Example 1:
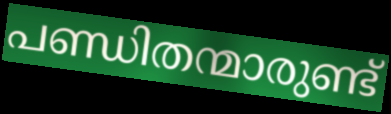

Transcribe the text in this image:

പണ്ഡിതന്മാരുണ്ട്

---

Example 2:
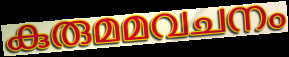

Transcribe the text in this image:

കുരുമമവചനം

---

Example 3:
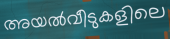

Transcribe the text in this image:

അയൽവീടുകളിലെ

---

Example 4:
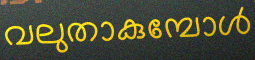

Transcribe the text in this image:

വലുതാകുമ്പോൾ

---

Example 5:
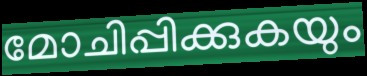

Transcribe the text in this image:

മോചിപ്പിക്കുകയും